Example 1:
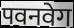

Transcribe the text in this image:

पवनवेग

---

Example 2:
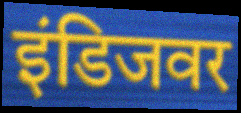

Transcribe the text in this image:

इंडिजवर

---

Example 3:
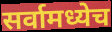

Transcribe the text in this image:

सर्वामध्येच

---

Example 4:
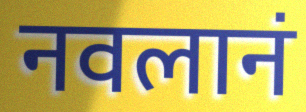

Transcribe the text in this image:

नवलानं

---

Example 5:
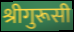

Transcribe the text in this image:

श्रीगुरूसी